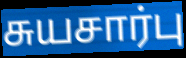
சுயசார்பு